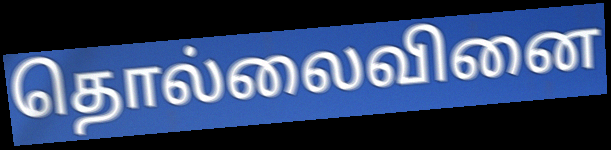
தொல்லைவினை